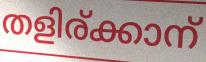
തളിര്ക്കാന്